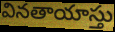
వినతాయాస్తు